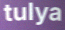
tulya